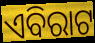
ଏବିରାଟ